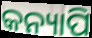
କନ୍ୟାପି